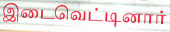
இடைவெட்டினார்